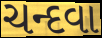
ચન્દવા